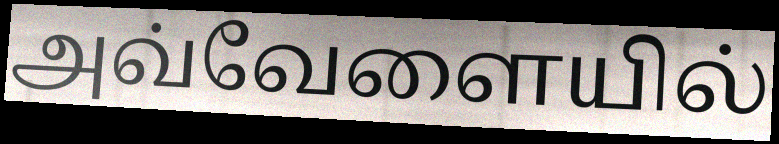
அவ்வேளையில்